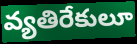
వ్యతిరేకులూ